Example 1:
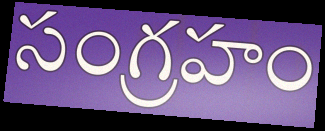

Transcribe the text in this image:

సంగ్రహం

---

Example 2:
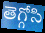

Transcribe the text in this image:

తెగ్గోసి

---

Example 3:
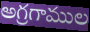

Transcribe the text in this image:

అగ్రగాముల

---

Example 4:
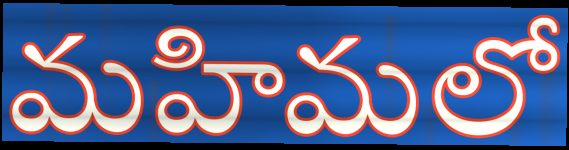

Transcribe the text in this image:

మహిమలో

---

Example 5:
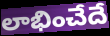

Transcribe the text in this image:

లాభించేదే